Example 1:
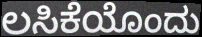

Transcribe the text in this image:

ಲಸಿಕೆಯೊಂದು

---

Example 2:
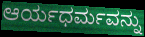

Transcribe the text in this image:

ಆರ್ಯಧರ್ಮವನ್ನು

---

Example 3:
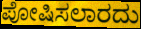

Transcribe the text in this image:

ಪೋಷಿಸಲಾರದು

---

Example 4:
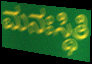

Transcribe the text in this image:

ಮನಃಸ್ಥಿತಿ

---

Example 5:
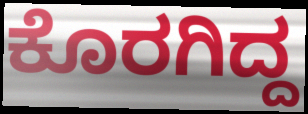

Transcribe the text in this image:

ಕೊರಗಿದ್ದ